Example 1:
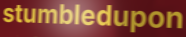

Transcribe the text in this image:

stumbledupon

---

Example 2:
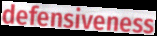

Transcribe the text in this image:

defensiveness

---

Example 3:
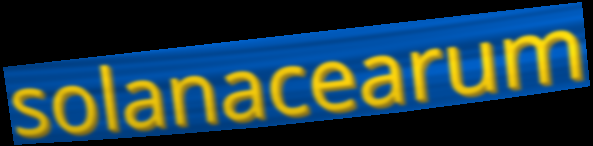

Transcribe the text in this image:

solanacearum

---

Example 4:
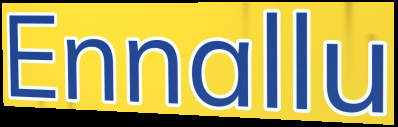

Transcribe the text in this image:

Ennallu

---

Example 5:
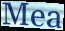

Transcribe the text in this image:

Mea